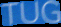
TUG